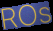
ROs